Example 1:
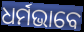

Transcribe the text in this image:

ଧର୍ମଭାବେ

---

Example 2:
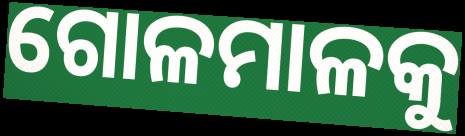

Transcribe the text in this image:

ଗୋଳମାଳକୁ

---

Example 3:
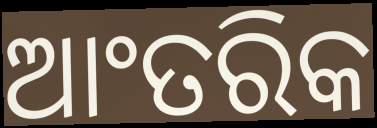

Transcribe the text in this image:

ଆଂତରିକ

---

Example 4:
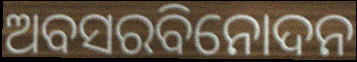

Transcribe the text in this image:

ଅବସରବିନୋଦନ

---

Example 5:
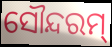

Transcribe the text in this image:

ସୌନ୍ଦରମ୍